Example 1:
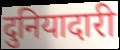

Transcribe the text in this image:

दुनियादारी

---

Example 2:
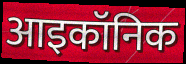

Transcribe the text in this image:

आइकॉनिक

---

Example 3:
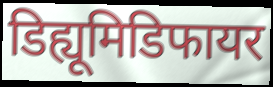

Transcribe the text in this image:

डिह्यूमिडिफायर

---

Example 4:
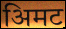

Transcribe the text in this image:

अिमट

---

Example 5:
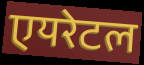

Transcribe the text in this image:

एयरेटल